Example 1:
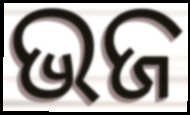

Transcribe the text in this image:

ଭଜ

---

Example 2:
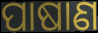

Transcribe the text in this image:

ପାଷାଣ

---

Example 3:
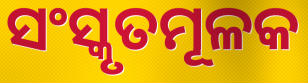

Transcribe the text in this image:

ସଂସ୍କୃତମୂଳକ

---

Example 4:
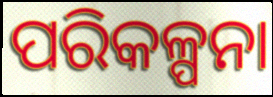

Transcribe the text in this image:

ପରିକଳ୍ପନା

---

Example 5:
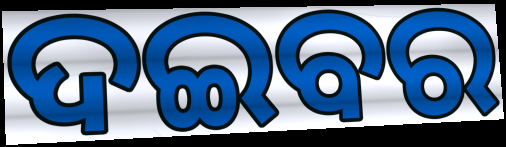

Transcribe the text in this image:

ଦଇବର